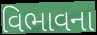
વિભાવના